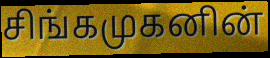
சிங்கமுகனின்